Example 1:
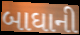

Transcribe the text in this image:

બાઘાની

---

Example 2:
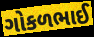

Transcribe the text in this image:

ગોકળભાઈ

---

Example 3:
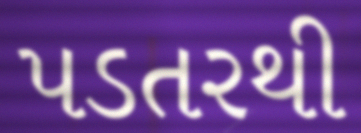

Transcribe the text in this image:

પડતરથી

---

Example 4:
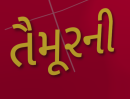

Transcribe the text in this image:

તૈમૂરની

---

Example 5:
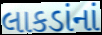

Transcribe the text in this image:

લાકડાંનાં